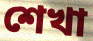
শেখা